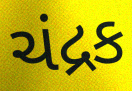
ચંદ્રક